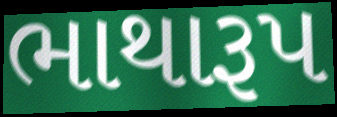
ભાથારૂપ